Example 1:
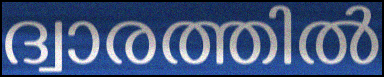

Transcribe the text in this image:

ദ്വാരത്തിൽ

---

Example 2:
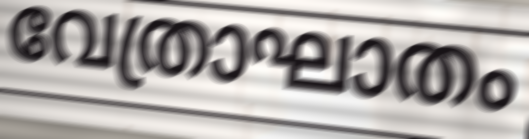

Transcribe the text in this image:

വേത്രാഘാതം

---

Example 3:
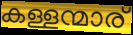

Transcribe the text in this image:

കള്ളന്മാര്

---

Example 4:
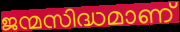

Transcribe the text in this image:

ജന്മസിദ്ധമാണ്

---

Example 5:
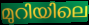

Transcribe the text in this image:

മുറിയിലെ